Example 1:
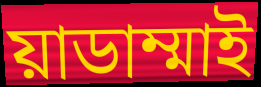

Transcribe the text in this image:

য়াডাম্মাই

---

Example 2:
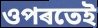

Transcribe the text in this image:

ওপৰতেই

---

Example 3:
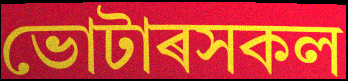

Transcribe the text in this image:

ভোটাৰসকল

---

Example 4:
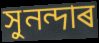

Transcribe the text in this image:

সুনন্দাৰ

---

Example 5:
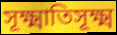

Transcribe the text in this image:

সূক্ষ্মাতিসূক্ষ্ম